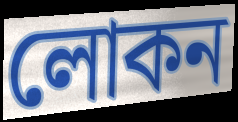
লোকন